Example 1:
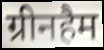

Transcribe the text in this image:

ग्रीनहैम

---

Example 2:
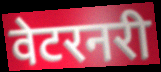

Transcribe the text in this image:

वेटरनरी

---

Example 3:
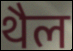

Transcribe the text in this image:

थैल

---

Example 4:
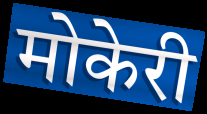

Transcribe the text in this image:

मोकेरी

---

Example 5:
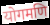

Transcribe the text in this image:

योगमणि